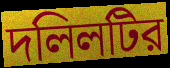
দলিলটির